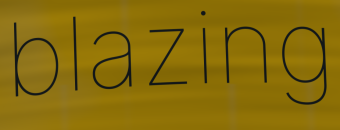
blazing